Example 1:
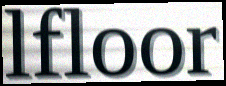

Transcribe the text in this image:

lfloor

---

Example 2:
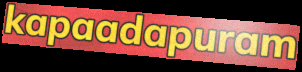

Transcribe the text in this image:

kapaadapuram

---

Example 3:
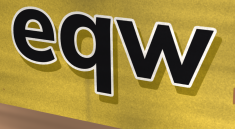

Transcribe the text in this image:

eqw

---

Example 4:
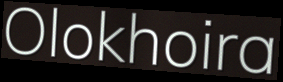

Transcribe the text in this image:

Olokhoira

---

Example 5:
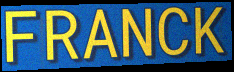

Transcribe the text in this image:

FRANCK